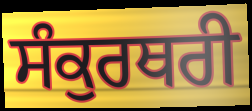
ਸੰਕੁਰਥਰੀ